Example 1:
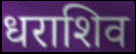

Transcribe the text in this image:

धराशिव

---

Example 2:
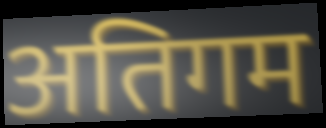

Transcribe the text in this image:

अतिगम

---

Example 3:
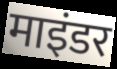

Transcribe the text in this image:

माइंडर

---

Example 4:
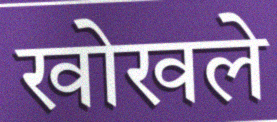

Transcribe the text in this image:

खोखले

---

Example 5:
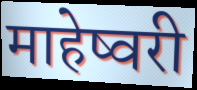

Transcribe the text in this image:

माहेष्वरी